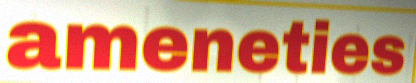
ameneties